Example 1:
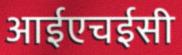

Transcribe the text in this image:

आईएचईसी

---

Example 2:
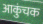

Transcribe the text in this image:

आकुंचक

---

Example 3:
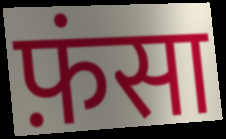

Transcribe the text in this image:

फ़ंसा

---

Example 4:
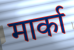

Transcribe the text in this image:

मार्का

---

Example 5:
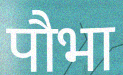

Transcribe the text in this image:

पौभा